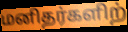
மனிதர்களிற்